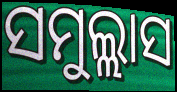
ସମୁଲ୍ଲାସ